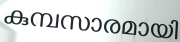
കുമ്പസാരമായി